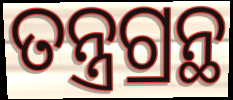
ତନ୍ତ୍ରଗ୍ରନ୍ଥ